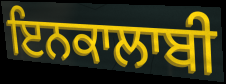
ਇਨਕਾਲਾਬੀ